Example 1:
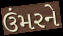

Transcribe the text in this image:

ઉંમરને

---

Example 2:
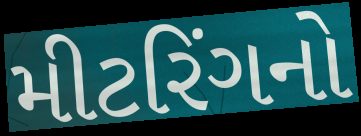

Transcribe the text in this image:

મીટરિંગનો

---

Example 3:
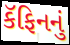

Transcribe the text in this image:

કૅફિનનું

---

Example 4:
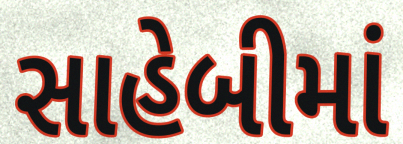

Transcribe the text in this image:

સાહેબીમાં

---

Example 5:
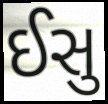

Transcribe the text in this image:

ઈસુ